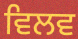
ਵਿਲਵ